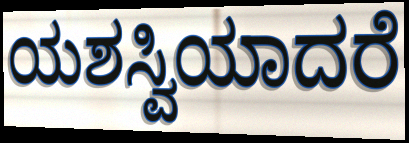
ಯಶಸ್ವಿಯಾದರೆ